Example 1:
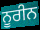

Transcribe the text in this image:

ਨੂਰੀਨ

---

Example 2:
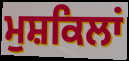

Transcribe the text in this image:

ਮੁਸ਼ਕਿਲਾਂ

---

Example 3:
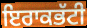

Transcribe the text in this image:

ਇਰਾਕਭੱਟੀ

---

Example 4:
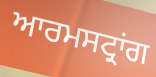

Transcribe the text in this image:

ਆਰਮਸਟ੍ਰਾਂਗ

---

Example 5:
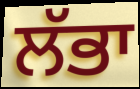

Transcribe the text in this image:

ਲੱਭਾ